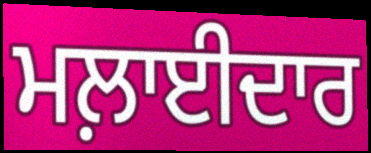
ਮਲ਼ਾਈਦਾਰ